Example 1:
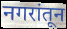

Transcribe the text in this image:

नगरांतून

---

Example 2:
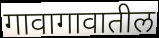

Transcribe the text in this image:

गावागावातील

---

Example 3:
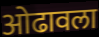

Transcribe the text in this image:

ओढावला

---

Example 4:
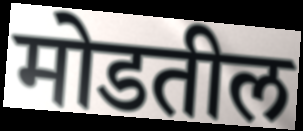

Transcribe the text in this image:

मोडतील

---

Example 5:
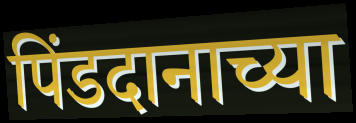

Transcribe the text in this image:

पिंडदानाच्या